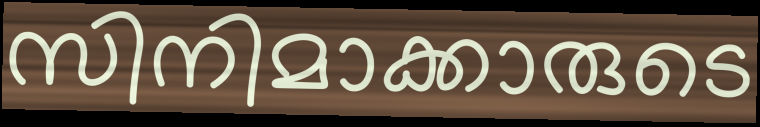
സിനിമാക്കാരുടെ